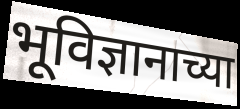
भूविज्ञानाच्या